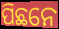
ପିଛନେ